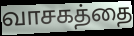
வாசகத்தை